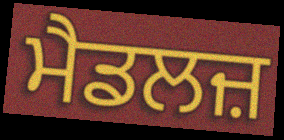
ਮੈਡਲਜ਼